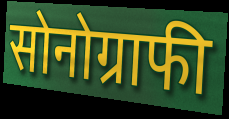
सोनोग्राफी